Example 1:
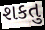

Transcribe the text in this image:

શકતુ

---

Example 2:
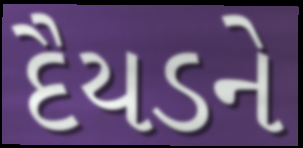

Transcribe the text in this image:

દૈયડને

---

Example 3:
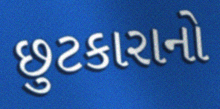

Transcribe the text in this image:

છુટકારાનો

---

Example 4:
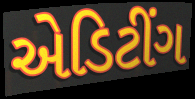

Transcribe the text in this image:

એડિટીંગ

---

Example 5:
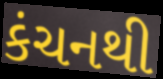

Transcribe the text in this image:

કંચનથી